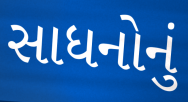
સાધનોનું